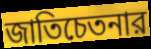
জাতিচেতনার